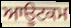
ਆਊਟਕਮ